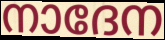
നാദേന